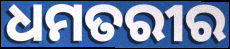
ଧମତରୀର